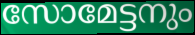
സോമേട്ടനും